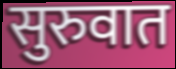
सुरुवात